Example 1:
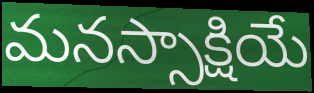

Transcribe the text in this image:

మనస్సాక్షియే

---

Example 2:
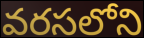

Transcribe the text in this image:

వరసలోని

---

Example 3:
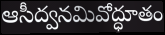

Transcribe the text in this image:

ఆసీద్వనమివోద్ధూతం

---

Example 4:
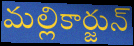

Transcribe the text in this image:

మల్లికార్జున్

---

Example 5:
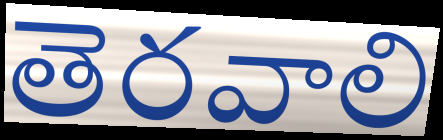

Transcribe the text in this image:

తెరవాలి